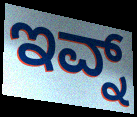
ಇವ್ನ್